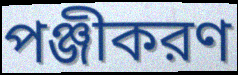
পঞ্জীকরণ